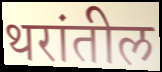
थरांतील